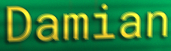
Damian